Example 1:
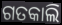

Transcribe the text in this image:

ଗତକାଲି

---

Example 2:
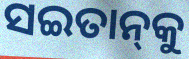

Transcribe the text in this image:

ସଇତାନ୍‌କୁ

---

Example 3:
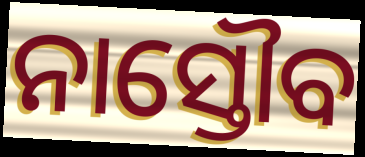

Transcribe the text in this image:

ନାସ୍ତୌବ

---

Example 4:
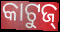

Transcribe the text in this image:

କାଟୁଜ୍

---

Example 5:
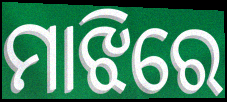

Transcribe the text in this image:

ମାଝିରେ